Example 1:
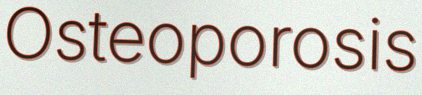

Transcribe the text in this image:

Osteoporosis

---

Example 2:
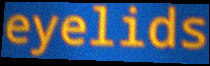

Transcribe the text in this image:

eyelids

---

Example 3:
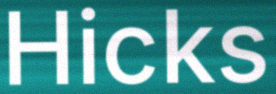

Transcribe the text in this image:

Hicks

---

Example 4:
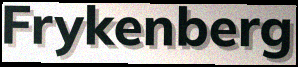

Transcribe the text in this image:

Frykenberg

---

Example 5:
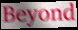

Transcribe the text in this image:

Beyond